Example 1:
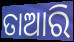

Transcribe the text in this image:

ତାଆରି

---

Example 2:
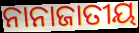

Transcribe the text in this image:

ନାନାଜାତୀୟ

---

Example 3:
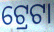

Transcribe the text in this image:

ଟ୍ରେଟା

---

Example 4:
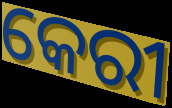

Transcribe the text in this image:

କେରୀ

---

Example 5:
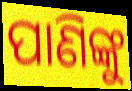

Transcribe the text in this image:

ପାଣିଙ୍କୁ